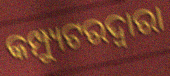
କମ୍ପ୍ୟୁଟରଦ୍ୱାରା